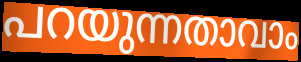
പറയുന്നതാവാം